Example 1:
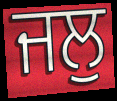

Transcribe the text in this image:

ਜਲੁ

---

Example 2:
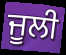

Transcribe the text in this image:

ਜੂਲੀ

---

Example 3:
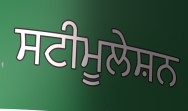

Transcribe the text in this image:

ਸਟੀਮੂਲੇਸ਼ਨ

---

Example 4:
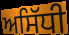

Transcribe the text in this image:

ਅਸਿੱਧੀ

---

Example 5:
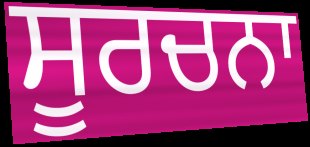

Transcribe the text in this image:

ਸੂਰਚਨਾ